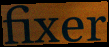
fixer